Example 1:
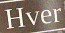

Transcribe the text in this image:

Hver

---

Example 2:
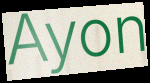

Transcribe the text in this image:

Ayon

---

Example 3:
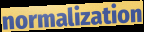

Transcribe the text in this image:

normalization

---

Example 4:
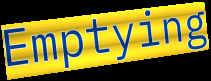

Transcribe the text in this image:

Emptying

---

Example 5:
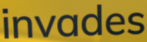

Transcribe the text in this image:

invades